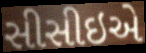
સીસીઇએ